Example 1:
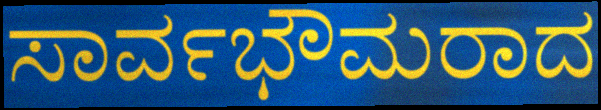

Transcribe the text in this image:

ಸಾರ್ವಭೌಮರಾದ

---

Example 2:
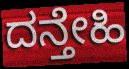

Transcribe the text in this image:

ದನ್ತೇಹಿ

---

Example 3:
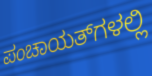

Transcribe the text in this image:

ಪಂಚಾಯತ್‌ಗಳಲ್ಲಿ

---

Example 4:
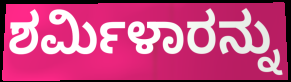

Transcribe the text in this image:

ಶರ್ಮಿಳಾರನ್ನು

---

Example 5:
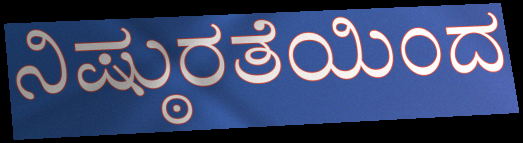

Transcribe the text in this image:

ನಿಷ್ಠುರತೆಯಿಂದ